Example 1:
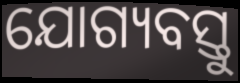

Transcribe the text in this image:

ଯୋଗ୍ୟବସ୍ତୁ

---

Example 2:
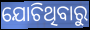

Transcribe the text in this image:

ଯୋଚିଥିବାରୁ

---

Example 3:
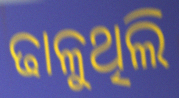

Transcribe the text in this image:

ଢାଳୁଥିଲି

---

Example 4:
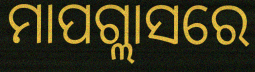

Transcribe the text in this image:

ମାପଗ୍ଲାସରେ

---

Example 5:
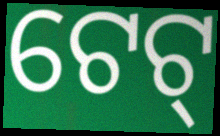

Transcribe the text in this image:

ଟେଟ୍